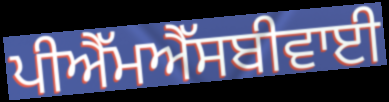
ਪੀਐੱਮਐੱਸਬੀਵਾਈ